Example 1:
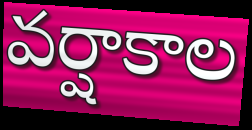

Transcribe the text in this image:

వర్షాకాల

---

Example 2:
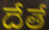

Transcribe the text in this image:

దేతే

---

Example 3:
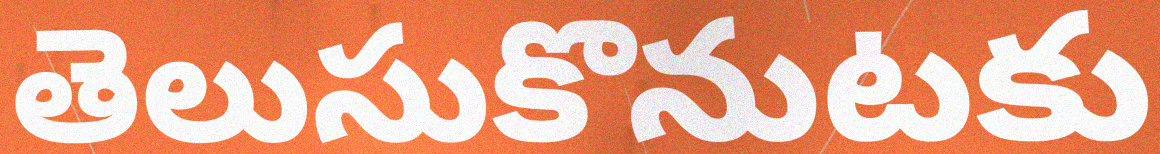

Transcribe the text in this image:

తెలుసుకొనుటకు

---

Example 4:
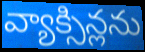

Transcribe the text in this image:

వ్యాక్సిన్లను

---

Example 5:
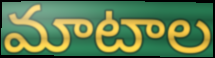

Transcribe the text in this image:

మాటాల